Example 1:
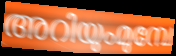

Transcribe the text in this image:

അറിയുംമുമ്പേ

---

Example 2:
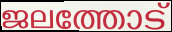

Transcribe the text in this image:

ജലത്തോട്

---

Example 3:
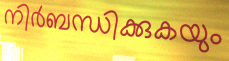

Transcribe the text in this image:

നിർബന്ധിക്കുകയും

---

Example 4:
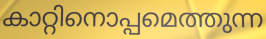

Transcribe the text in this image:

കാറ്റിനൊപ്പമെത്തുന്ന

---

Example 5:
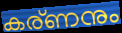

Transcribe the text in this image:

കര്ണനും